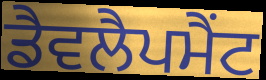
ਡੈਵਲੈਪਮੈਂਟ